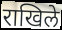
राखिले